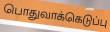
பொதுவாக்கெடுப்பு